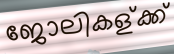
ജോലികള്ക്ക്